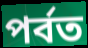
পর্বত